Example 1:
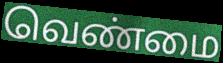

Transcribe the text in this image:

வெண்மை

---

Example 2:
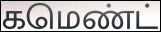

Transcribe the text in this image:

கமெண்ட்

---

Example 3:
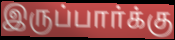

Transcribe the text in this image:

இருப்பார்க்கு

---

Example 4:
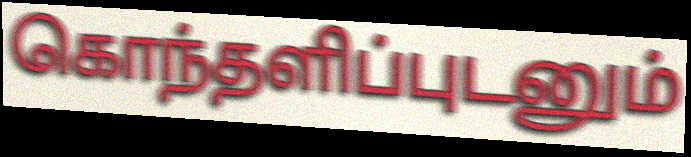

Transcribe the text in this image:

கொந்தளிப்புடனும்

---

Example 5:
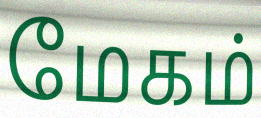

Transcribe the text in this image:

மேகம்